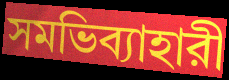
সমভিব্যাহারী